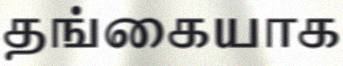
தங்கையாக